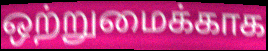
ஒற்றுமைக்காக